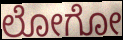
ಲೋಗೋ